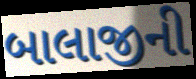
બાલાજીની